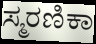
ಸ್ಮರಣಿಕಾ